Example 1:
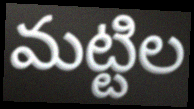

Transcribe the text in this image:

మట్టిల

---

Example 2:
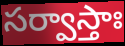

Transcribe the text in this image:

సర్వాస్తాః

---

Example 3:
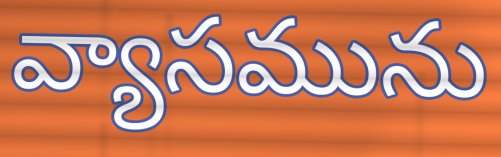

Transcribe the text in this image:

వ్యాసమును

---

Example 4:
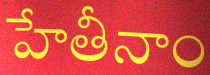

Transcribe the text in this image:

హేతీనాం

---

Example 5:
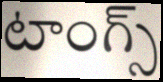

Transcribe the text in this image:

టాంగ్స్